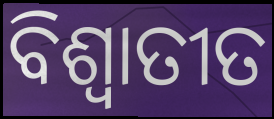
ବିଶ୍ୱାତୀତ